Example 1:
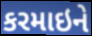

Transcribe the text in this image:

કરમાઇને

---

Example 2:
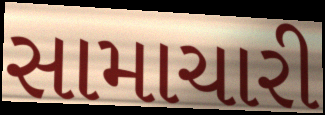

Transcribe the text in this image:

સામાચારી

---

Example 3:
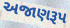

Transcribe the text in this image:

અજાણરૂપ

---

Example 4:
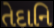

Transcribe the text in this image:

તેદાનિ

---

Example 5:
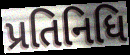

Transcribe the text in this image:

પ્રતિનિધિ